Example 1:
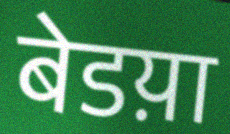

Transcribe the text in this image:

बेडय़ा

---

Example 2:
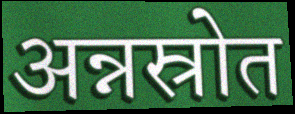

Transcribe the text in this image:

अन्नस्रोत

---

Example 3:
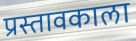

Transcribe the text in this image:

प्रस्तावकाला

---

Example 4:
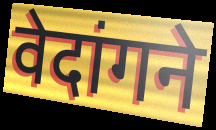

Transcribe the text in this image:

वेदांगने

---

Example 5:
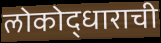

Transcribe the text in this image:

लोकोद्धाराची